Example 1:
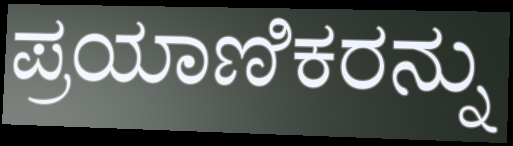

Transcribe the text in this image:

ಪ್ರಯಾಣಿಕರನ್ನು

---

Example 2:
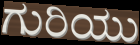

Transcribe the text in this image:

ಗುರಿಯು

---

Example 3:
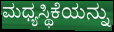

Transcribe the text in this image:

ಮಧ್ಯಸ್ಥಿಕೆಯನ್ನು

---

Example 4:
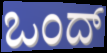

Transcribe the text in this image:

ಒಂದ್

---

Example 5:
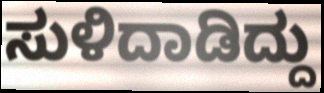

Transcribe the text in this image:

ಸುಳಿದಾಡಿದ್ದು